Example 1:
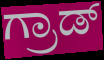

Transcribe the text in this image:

ಗ್ರಾಡ್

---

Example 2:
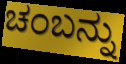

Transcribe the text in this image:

ಚಂಬನ್ನು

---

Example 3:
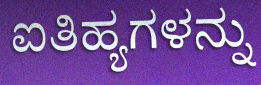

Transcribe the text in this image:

ಐತಿಹ್ಯಗಳನ್ನು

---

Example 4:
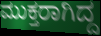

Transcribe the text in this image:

ಮುಕ್ತರಾಗಿದ್ದ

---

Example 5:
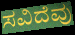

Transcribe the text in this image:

ಸವಿದೆವು